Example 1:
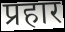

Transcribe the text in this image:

प्रहार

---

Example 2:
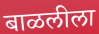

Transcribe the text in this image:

बाळलीला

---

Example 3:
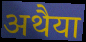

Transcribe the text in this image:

अथैया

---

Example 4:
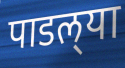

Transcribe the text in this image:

पाडल्या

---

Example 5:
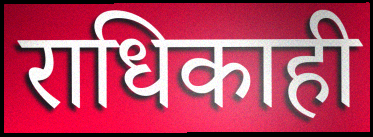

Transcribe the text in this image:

राधिकाही